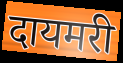
दायमरी